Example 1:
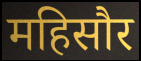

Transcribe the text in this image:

महिसौर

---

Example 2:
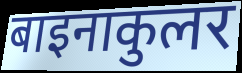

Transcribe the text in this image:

बाइनाकुलर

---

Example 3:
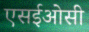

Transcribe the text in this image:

एसईओसी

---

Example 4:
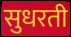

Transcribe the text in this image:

सुधरती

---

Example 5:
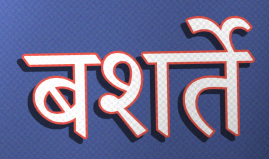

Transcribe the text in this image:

बशर्ते